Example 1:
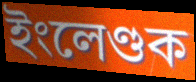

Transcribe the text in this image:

ইংলেণ্ডক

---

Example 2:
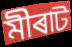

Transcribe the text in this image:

মীৰাট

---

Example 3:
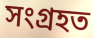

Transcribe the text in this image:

সংগ্ৰহত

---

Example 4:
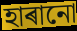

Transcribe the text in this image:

হাৰানো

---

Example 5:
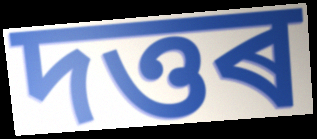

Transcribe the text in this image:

দত্তৰ